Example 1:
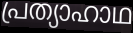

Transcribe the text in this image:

പ്രത്യാഹാഥ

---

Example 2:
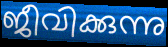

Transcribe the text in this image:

ജീവിക്കുന്നു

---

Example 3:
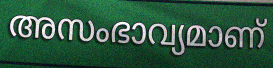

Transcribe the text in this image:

അസംഭാവ്യമാണ്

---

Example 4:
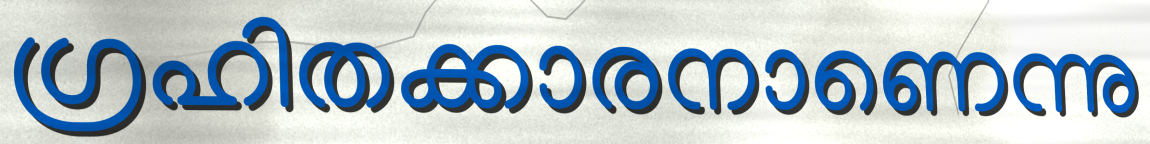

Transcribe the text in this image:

ഗ്രഹിതക്കാരനാണെന്നു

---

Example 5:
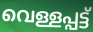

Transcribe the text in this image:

വെള്ളപ്പട്ട്